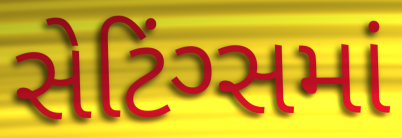
સેટિંગ્સમાં